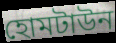
হোমটাউন